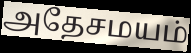
அதேசமயம்